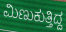
ಮಿಣುಕುತ್ತಿದ್ದ